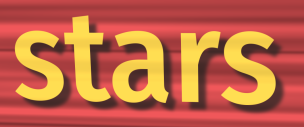
stars